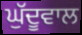
ਘੁੱਦੂਵਾਲ